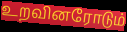
உறவினரோடும்